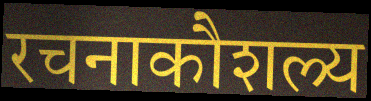
रचनाकौशल्य